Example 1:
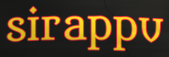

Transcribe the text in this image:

sirappu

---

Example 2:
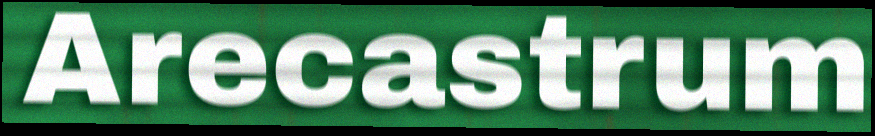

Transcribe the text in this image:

Arecastrum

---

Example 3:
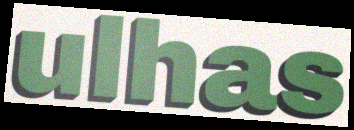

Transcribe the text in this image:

ulhas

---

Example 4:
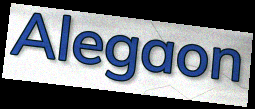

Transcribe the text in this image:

Alegaon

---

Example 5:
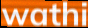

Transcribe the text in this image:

wathi